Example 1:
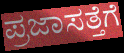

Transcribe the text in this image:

ಪ್ರಜಾಸತ್ತೆಗೆ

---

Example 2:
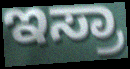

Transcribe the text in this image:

ಇಸ್ರಾ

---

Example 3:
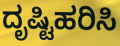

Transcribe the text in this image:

ದೃಷ್ಟಿಹರಿಸಿ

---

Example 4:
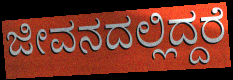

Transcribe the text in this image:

ಜೀವನದಲ್ಲಿದ್ದರೆ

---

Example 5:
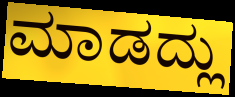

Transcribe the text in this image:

ಮಾಡದ್ಲು